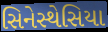
સિનેસ્થેસિયા